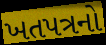
ખતપત્રનો